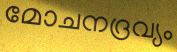
മോചനദ്രവ്യം